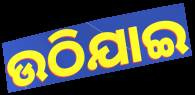
ଉଠିଯାଇ